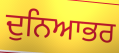
ਦੁਨਿਆਭਰ